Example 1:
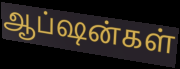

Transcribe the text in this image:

ஆப்ஷன்கள்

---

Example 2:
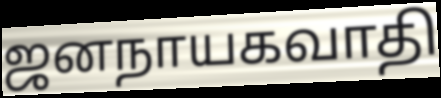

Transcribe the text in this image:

ஜனநாயகவாதி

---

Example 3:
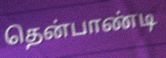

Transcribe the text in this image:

தென்பாண்டி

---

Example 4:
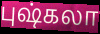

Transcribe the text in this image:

புஷ்கலா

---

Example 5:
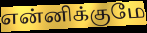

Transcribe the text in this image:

என்னிக்குமே